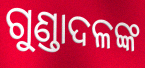
ଗୁଣ୍ଡାଦଳଙ୍କ